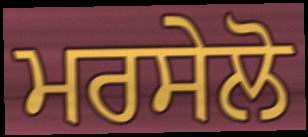
ਮਰਸੇਲੋ